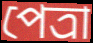
পেত্রা